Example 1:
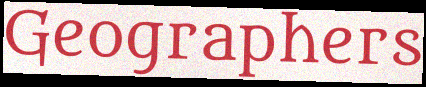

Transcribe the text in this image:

Geographers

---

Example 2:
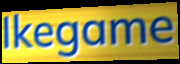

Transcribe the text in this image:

Ikegame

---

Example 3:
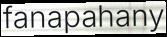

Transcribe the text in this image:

fanapahany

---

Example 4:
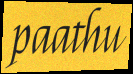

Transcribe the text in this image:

paathu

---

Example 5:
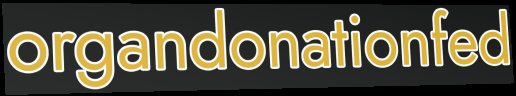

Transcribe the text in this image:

organdonationfed